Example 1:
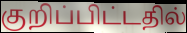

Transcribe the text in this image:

குறிப்பிட்டதில்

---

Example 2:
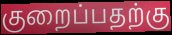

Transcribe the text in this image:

குறைப்பதற்கு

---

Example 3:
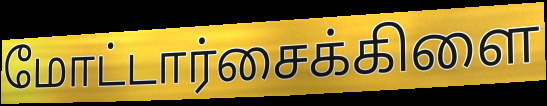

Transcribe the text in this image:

மோட்டார்சைக்கிளை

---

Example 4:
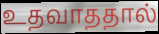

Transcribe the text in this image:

உதவாததால்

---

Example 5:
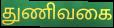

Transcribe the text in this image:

துணிவகை